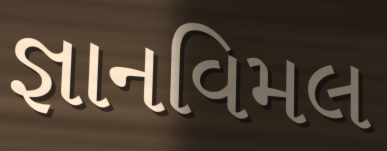
જ્ઞાનવિમલ